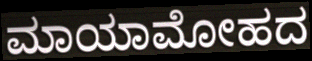
ಮಾಯಾಮೋಹದ